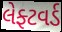
લેફ્ટવર્ડ